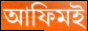
আফিমই